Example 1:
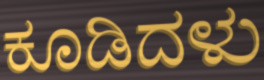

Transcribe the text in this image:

ಕೂಡಿದಳು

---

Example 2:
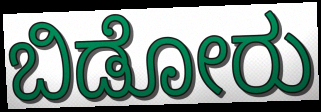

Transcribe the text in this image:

ಬಿಡೋರು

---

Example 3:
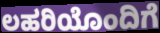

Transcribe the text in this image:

ಲಹರಿಯೊಂದಿಗೆ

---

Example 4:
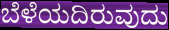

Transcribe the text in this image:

ಬೆಳೆಯದಿರುವುದು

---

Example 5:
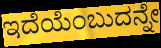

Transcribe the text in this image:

ಇದೆಯೆಂಬುದನ್ನೇ